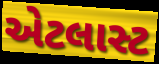
એટલાસ્ટ